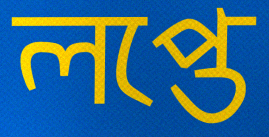
লপ্তে